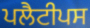
ਪਲੈਟੀਪਸ